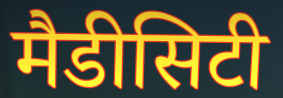
मैडीसिटी